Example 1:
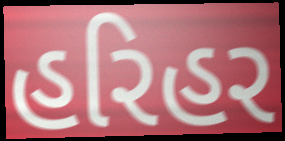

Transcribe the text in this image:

હરિહર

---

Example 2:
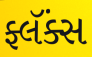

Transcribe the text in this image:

ફ્લૅંક્સ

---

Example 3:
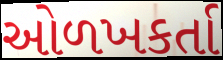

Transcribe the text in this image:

ઓળખકર્તા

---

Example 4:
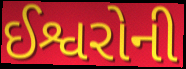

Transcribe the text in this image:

ઈશ્વરોની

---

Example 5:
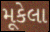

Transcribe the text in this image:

મૂકેલા